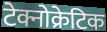
टेक्नोक्रेटिक